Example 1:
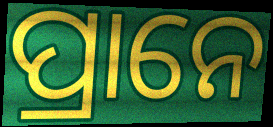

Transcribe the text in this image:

ପ୍ରାନେ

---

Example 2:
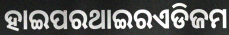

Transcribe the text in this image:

ହାଇପରଥାଇରଏଡିଜମ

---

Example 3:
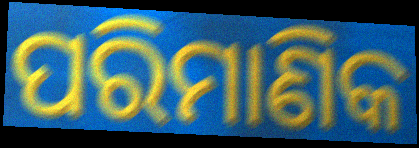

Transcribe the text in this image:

ପରିମାଣିକ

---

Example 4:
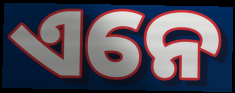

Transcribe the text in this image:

ଏନେ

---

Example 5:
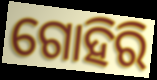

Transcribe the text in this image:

ଗୋହିରି